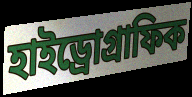
হাইড্রোগ্রাফিক